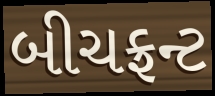
બીચફ્રન્ટ